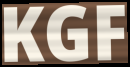
KGF